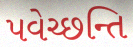
પવેચ્છન્તિ